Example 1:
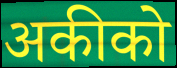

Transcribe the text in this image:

अकीको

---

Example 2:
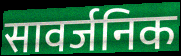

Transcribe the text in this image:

सावर्जनिक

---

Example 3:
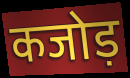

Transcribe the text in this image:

कजोड़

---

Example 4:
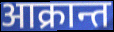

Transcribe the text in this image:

आक्रान्त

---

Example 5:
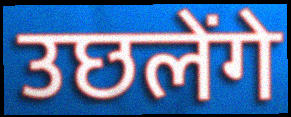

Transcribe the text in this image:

उछलेंगे